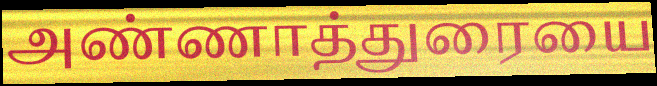
அண்ணாத்துரையை